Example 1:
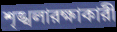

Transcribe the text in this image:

শৃঙ্খলারক্ষাকারী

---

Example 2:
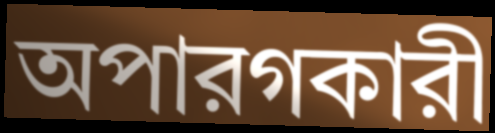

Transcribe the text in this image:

অপারগকারী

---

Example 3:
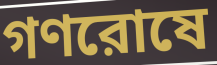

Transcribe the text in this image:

গণরোষে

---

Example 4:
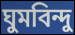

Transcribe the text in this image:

ঘুমবিন্দু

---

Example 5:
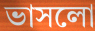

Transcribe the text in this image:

ভাসলো